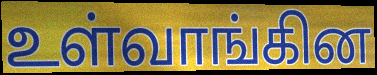
உள்வாங்கின